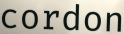
cordon